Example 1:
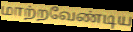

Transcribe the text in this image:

மாற்றவேண்டிய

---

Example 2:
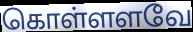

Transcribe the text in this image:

கொள்ளளவே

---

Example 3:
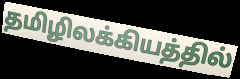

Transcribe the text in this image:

தமிழிலக்கியத்தில்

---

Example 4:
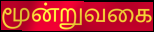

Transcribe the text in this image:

மூன்றுவகை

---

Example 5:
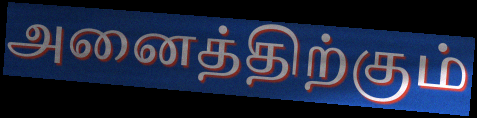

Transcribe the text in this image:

அனைத்திற்கும்